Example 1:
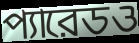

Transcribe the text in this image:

প্যারেডও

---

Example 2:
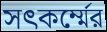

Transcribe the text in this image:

সৎকর্ম্মের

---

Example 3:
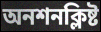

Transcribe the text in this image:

অনশনক্লিষ্ট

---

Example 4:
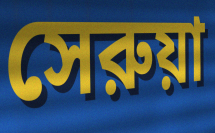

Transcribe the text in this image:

সেরুয়া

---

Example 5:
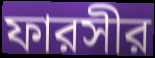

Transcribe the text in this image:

ফারসীর